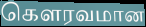
கெளரவமான